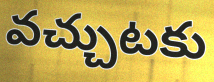
వచ్చుటకు